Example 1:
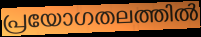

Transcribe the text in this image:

പ്രയോഗതലത്തിൽ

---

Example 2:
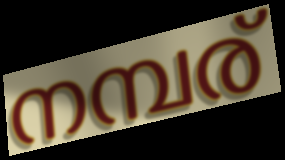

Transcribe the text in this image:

നമ്പര്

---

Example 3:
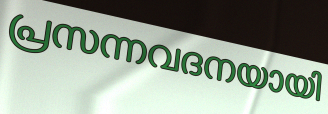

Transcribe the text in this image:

പ്രസന്നവദനയായി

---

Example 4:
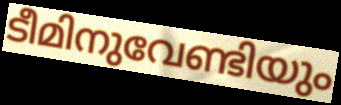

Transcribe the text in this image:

ടീമിനുവേണ്ടിയും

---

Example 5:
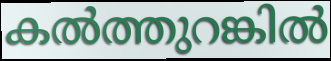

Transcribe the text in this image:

കൽത്തുറങ്കിൽ